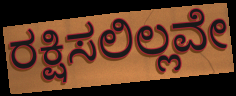
ರಕ್ಷಿಸಲಿಲ್ಲವೇ